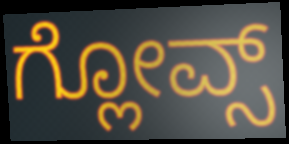
ಗ್ಲೋವ್ಸ್